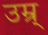
उम्र्